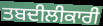
ਤਬਦੀਲੀਕਾਰੀ